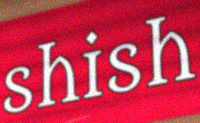
shish